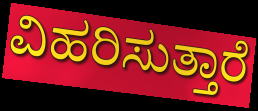
ವಿಹರಿಸುತ್ತಾರೆ